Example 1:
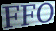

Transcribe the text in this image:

FFO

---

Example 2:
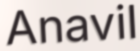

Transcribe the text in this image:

Anavil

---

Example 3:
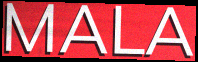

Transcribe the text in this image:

MALA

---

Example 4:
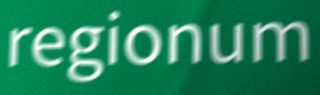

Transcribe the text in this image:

regionum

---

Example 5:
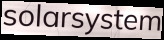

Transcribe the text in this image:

solarsystem